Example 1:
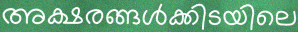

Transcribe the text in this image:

അക്ഷരങ്ങൾക്കിടയിലെ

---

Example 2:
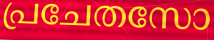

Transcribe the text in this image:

പ്രചേതസോ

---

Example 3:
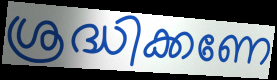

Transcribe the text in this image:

ശ്രദ്ധിക്കണേ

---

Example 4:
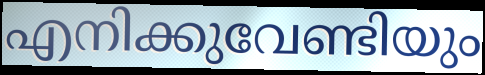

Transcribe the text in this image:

എനിക്കുവേണ്ടിയും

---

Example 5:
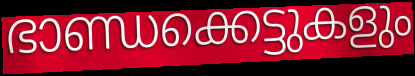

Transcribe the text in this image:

ഭാണ്ഡക്കെട്ടുകളും